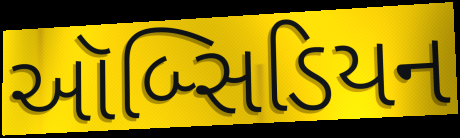
ઑબ્સિડિયન